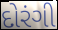
દોરંગી